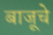
बाजूचे